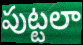
పుట్టలా